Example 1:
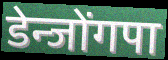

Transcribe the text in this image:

डेन्जोंगपा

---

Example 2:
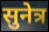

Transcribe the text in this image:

सुनेत्र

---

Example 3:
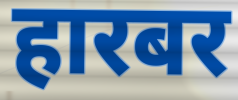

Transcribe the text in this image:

हारबर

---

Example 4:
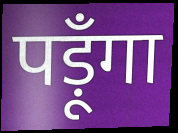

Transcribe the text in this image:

पड़ूँगा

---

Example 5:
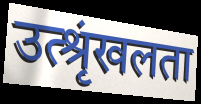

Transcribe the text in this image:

उत्श्रृंखलता